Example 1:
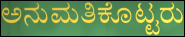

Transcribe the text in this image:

ಅನುಮತಿಕೊಟ್ಟರು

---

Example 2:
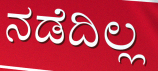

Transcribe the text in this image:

ನಡೆದಿಲ್ಲ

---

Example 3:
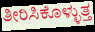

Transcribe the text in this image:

ತೀರಿಸಿಕೊಳ್ಳುತ್ತ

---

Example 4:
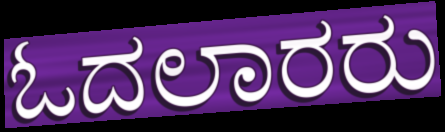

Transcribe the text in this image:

ಓದಲಾರರು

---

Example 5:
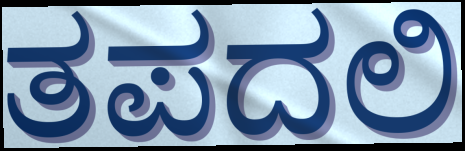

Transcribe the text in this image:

ತಪದಲಿ